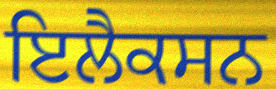
ਇਲੈਕਸਨ